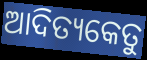
ଆଦିତ୍ୟକେତୁ